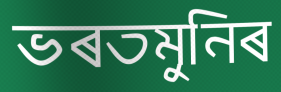
ভৰতমুনিৰ